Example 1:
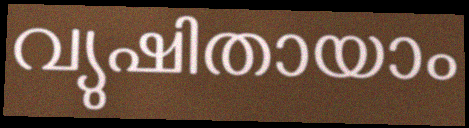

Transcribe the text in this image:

വ്യുഷിതായാം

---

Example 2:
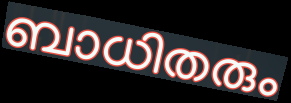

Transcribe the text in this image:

ബാധിതരും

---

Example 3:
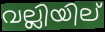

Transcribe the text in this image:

വല്ലിയില്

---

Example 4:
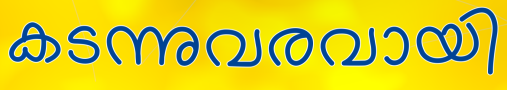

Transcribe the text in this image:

കടന്നുവരവായി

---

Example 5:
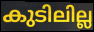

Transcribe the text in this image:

കുടിലില്ല